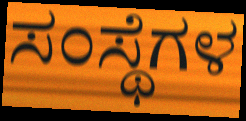
ಸಂಸ್ಥೆಗಳ